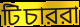
টিচাররা